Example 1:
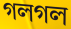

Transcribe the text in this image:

গলগল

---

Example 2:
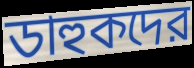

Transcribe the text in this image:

ডাহুকদের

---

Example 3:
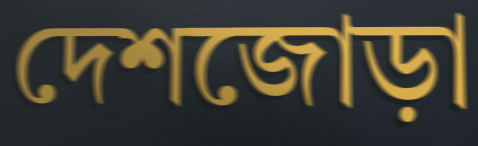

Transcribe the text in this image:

দেশজোড়া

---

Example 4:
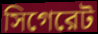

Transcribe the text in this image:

সিগেরেট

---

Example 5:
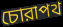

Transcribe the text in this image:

চোরাপথ